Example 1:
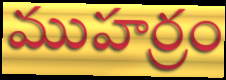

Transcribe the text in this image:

ముహర్రం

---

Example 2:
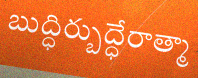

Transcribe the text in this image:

బుద్ధిర్బుద్ధేరాత్మా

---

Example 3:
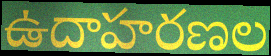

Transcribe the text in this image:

ఉదాహరణల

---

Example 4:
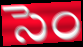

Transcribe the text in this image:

సెం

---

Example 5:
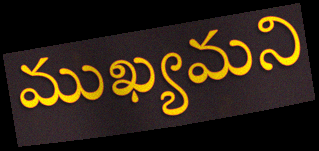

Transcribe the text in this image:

ముఖ్యమని